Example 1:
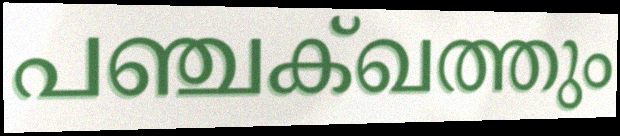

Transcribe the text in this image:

പഞ്ചക്ഖത്തും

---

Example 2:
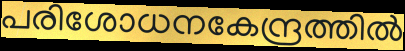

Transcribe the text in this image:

പരിശോധനകേന്ദ്രത്തിൽ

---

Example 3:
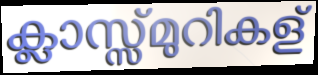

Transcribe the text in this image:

ക്ലാസ്സ്മുറികള്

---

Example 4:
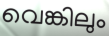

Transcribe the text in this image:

വെങ്കിലും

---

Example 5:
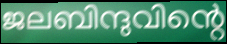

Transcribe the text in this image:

ജലബിന്ദുവിന്റെ